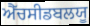
ਐੱਚਸੀਡਬਲਯੂ